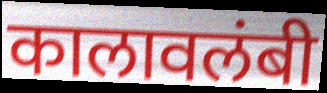
कालावलंबी